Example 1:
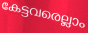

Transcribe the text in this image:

കേട്ടവരെല്ലാം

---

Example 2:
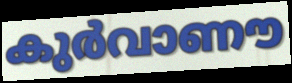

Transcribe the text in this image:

കുർവാണൗ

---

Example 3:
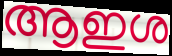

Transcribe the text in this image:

ആഇശ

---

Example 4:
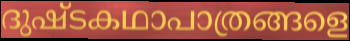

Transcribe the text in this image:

ദുഷ്ടകഥാപാത്രങ്ങളെ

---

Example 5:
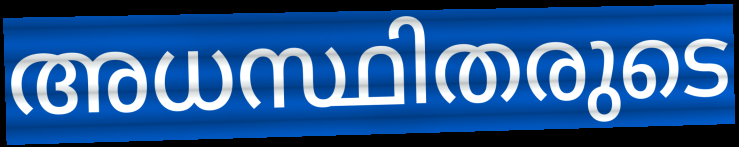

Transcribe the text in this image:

അധസ്ഥിതരുടെ